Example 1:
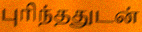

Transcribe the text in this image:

புரிந்ததுடன்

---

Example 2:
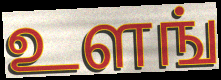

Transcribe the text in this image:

உளங்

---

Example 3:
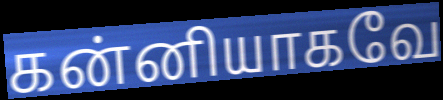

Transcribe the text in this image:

கன்னியாகவே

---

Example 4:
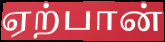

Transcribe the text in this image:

ஏற்பான்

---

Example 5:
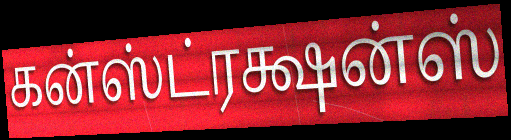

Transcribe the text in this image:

கன்ஸ்ட்ரக்ஷன்ஸ்